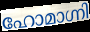
ഹോമാഗ്നി